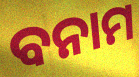
ବନାମ